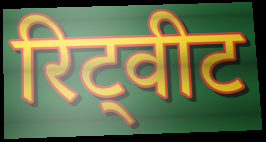
रिट्वीट